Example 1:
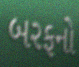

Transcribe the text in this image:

બરફનો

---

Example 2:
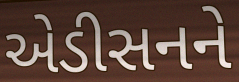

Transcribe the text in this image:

એડીસનને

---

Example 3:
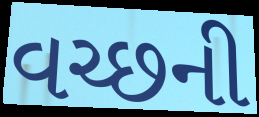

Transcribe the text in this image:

વચ્છની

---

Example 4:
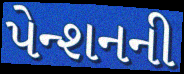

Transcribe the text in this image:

પેન્શનની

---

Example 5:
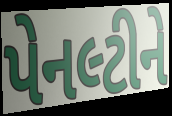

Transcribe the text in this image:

પેનલ્ટીને